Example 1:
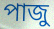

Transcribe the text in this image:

পাজু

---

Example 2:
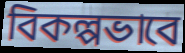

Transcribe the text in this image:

বিকল্পভাবে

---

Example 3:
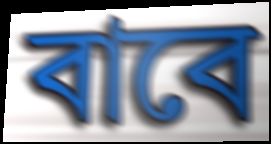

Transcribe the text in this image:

বাবে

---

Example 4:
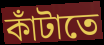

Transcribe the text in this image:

কাঁটাতে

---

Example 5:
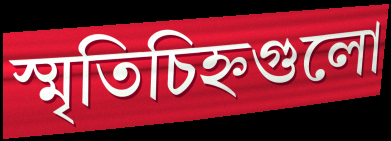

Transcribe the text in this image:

স্মৃতিচিহ্নগুলো